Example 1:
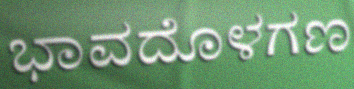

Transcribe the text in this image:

ಭಾವದೊಳಗಣ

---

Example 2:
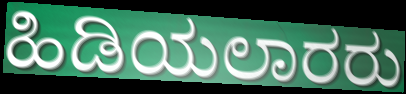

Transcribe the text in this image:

ಹಿಡಿಯಲಾರರು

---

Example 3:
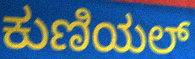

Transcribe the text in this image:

ಕುಣಿಯಲ್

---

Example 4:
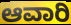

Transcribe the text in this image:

ಆವಾರಿ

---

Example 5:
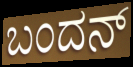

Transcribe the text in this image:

ಬಂದನ್